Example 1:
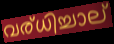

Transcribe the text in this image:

വര്ധിച്ചാല്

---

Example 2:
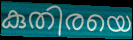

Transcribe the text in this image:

കുതിരയെ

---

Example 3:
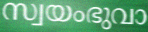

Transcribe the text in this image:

സ്വയംഭുവാ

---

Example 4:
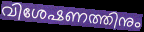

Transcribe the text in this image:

വിശേഷണത്തിനും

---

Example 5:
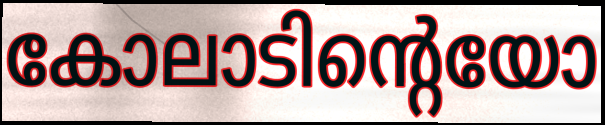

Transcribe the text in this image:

കോലാടിന്റെയോ